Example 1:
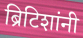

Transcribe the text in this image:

ब्रिटिशांनी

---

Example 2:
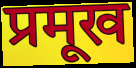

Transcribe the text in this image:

प्रमूख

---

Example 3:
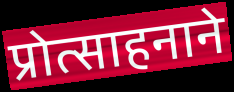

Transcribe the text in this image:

प्रोत्साहनाने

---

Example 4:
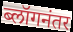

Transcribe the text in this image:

ब्लॉगनंतर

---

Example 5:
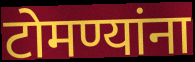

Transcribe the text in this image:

टोमण्यांना